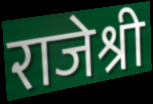
राजेश्री